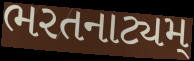
ભરતનાટ્યમ્